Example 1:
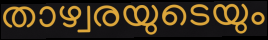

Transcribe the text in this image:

താഴ്വരയുടെയും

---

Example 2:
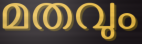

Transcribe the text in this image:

മതവും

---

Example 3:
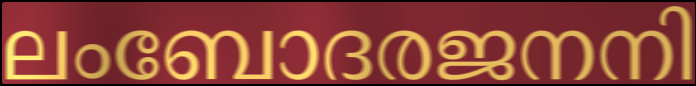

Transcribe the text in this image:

ലംബോദരജനനി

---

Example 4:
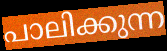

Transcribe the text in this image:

പാലിക്കുന്ന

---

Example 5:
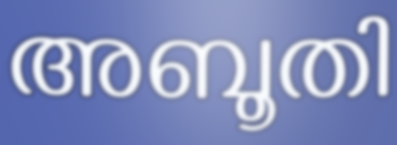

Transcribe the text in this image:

അബൂതി